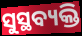
ସୁସ୍ଥବ୍ୟକ୍ତି